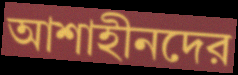
আশাহীনদের